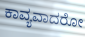
ಕಾವ್ಯವಾದರೋ